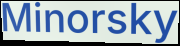
Minorsky